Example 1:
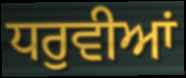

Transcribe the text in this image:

ਧਰੁਵੀਆਂ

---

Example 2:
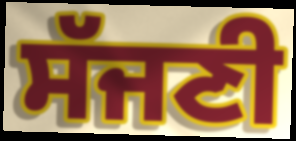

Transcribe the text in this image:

ਸੱਜਣੀ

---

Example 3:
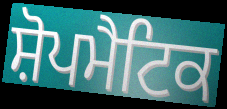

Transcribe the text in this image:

ਸ਼ੋਪਮੈਟਿਕ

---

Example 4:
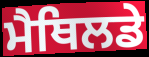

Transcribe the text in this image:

ਮੈਥਿਲਡੇ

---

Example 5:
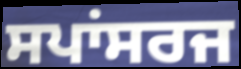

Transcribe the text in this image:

ਸਪਾਂਸਰਜ